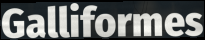
Galliformes